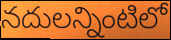
నదులన్నింటిలో